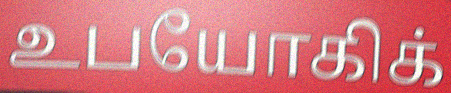
உபயோகிக்